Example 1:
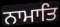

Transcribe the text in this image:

ਨਾਮਾਤਿ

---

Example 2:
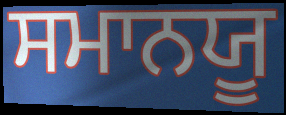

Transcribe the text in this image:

ਸਮਾਨਯੂ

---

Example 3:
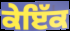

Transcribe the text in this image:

ਕੇਇੱਕ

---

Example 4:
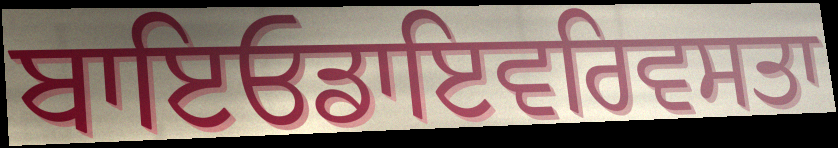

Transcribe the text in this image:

ਬਾਇਓਡਾਇਵਰਿਵਸਤਾ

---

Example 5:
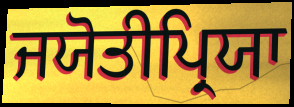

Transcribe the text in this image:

ਜਯੋਤੀਪ੍ਰਿਯਾ